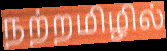
நற்றமிழில்